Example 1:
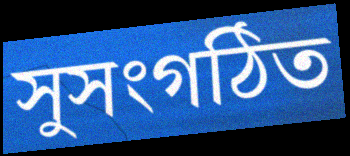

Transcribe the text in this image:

সুসংগঠিত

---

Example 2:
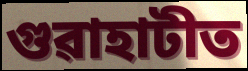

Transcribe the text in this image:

গুৱাহাটীত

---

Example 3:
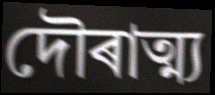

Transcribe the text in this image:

দৌৰাত্ম্য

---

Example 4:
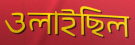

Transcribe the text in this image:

ওলাইছিল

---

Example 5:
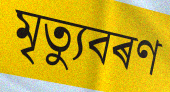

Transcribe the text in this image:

মৃত্যুবৰণ